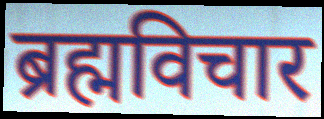
ब्रह्मविचार